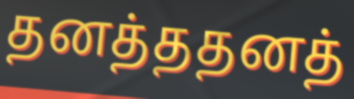
தனத்ததனத்